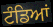
ਟੰਡਿਆਂ